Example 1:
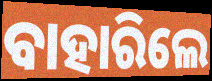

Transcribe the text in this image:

ବାହାରିଲେ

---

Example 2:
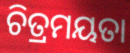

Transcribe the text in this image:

ଚିତ୍ରମୟତା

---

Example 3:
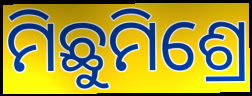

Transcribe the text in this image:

ମିଛୁମିଶ୍ରେ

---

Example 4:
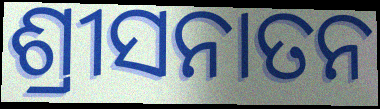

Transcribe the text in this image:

ଶ୍ରୀସନାତନ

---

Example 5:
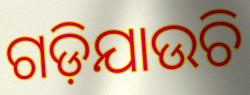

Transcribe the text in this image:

ଗଡ଼ିଯାଉଚି